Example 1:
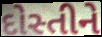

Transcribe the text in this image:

દોસ્તીને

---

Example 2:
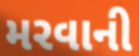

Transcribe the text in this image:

મરવાની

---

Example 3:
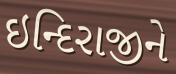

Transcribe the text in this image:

ઇન્દિરાજીને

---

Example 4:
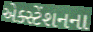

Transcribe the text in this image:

એક્સ્ટેંશનના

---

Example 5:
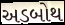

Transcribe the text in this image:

અડબોથ